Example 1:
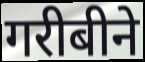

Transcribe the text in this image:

गरीबीने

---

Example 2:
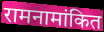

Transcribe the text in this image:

रामनामांकित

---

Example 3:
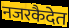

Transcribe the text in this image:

नजरकैदेत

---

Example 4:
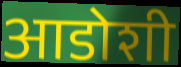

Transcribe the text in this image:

आडोशी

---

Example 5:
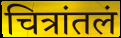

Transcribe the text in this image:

चित्रांतलं